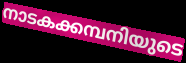
നാടകക്കമ്പനിയുടെ